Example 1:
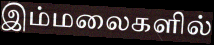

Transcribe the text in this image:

இம்மலைகளில்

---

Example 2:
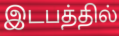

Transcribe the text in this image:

இடபத்தில்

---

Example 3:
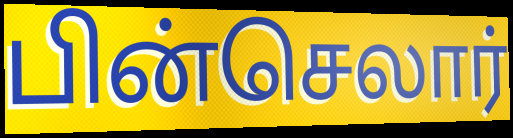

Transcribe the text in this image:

பின்செலார்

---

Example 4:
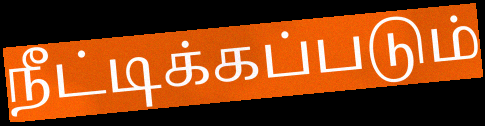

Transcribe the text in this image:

நீட்டிக்கப்படும்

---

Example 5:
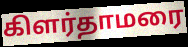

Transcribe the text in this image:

கிளர்தாமரை